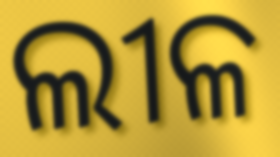
ଲୀଳ